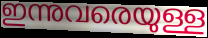
ഇന്നുവരെയുള്ള